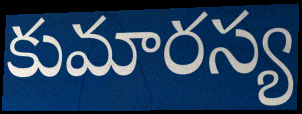
కుమారస్య